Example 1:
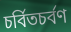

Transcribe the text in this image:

চর্বিতচর্বণ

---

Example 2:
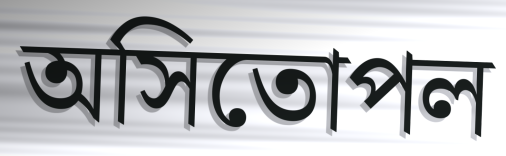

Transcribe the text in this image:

অসিতোপল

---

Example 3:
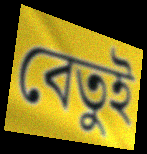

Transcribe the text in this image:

বেতুই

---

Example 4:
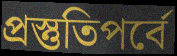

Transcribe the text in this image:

প্রস্তুতিপর্বে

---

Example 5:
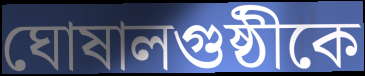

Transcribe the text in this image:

ঘোষালগুষ্ঠীকে